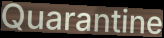
Quarantine